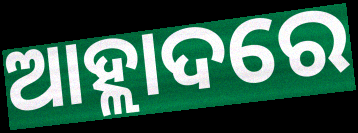
ଆହ୍ଲାଦରେ